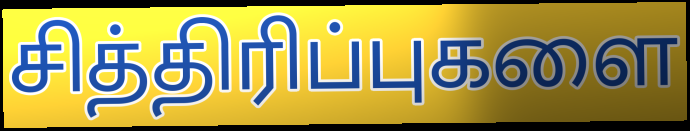
சித்திரிப்புகளை